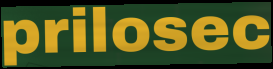
prilosec